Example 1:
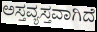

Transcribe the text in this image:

ಅಸ್ತವ್ಯಸ್ತವಾಗಿದೆ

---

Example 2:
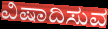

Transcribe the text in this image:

ವಿಷಾದಿಸುವ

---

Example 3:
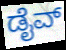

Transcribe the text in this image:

ಡೈವ್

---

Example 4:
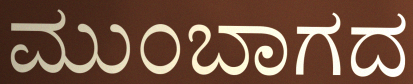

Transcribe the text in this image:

ಮುಂಬಾಗದ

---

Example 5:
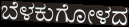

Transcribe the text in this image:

ಬೆಳಕುಗೋಳದ